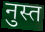
नुस्त